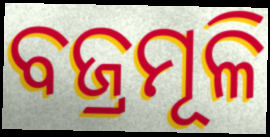
ବଜ୍ରମୂଳି